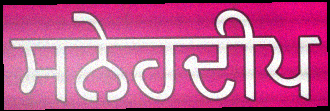
ਸਨੇਹਦੀਪ